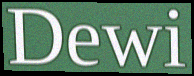
Dewi